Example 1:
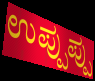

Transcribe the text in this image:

ಉಪ್ಪುಪ್ಪು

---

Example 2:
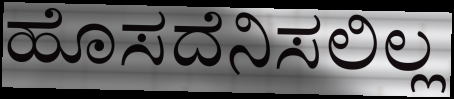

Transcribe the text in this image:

ಹೊಸದೆನಿಸಲಿಲ್ಲ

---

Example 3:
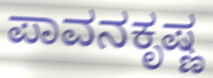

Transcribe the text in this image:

ಪಾವನಕೃಷ್ಣ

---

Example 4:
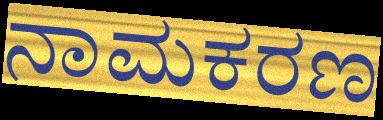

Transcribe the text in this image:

ನಾಮಕರಣ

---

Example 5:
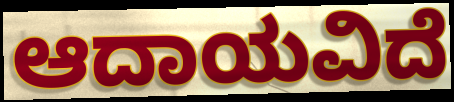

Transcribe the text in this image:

ಆದಾಯವಿದೆ